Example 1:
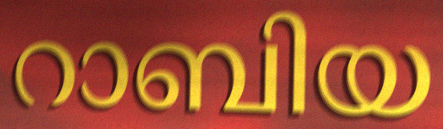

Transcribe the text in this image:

റാബിയ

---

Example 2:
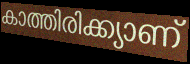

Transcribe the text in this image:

കാത്തിരിക്ക്യാണ്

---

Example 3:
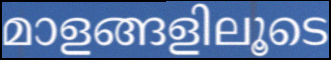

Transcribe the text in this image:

മാളങ്ങളിലൂടെ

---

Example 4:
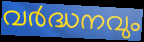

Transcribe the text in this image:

വർദ്ധനവും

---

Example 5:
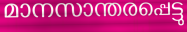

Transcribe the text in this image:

മാനസാന്തരപ്പെട്ടു